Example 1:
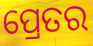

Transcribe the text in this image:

ପ୍ରେତର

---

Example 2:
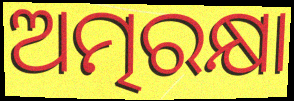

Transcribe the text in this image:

ଅତ୍ମରକ୍ଷା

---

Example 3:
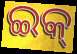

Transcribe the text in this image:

ଇକ୍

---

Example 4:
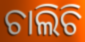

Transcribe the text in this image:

ଚାଲିଚି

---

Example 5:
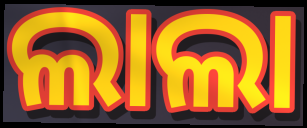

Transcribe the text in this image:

ଲାଲା